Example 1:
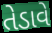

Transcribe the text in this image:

તેડાવે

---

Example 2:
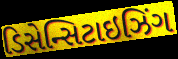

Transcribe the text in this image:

ડિસેન્સિટાઇઝિંગ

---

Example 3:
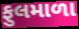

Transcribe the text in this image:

ફુલમાળા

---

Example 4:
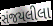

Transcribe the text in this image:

સંજયલીલા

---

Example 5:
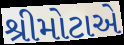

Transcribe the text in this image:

શ્રીમોટાએ